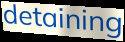
detaining